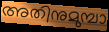
അതിനുമുമ്പാ